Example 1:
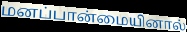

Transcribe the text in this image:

மனப்பான்மையினால்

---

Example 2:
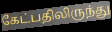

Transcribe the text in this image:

கேட்பதிலிருந்து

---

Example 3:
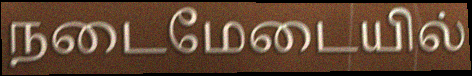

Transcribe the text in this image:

நடைமேடையில்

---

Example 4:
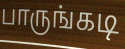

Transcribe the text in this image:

பாருங்கடி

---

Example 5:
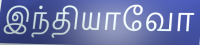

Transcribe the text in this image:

இந்தியாவோ